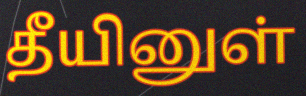
தீயினுள்